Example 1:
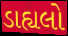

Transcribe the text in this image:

ડાહ્યલો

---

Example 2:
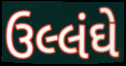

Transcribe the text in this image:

ઉલ્લંઘે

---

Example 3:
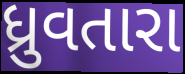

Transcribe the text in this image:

ધ્રુવતારા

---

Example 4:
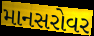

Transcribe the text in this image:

માનસરોવર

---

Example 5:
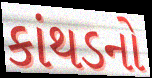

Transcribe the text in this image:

કાંથડનો